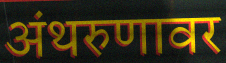
अंथरुणावर